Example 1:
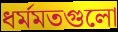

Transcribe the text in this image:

ধর্মমতগুলো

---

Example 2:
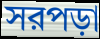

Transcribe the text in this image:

সরপড়া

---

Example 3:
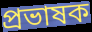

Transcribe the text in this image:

প্রভাষক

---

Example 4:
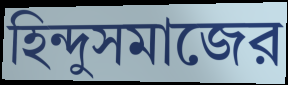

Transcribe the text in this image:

হিন্দুসমাজের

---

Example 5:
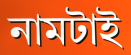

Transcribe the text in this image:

নামটাই